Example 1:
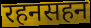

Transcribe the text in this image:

रहनसहन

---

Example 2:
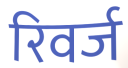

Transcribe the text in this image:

रिवर्ज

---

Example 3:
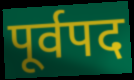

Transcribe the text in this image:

पूर्वपद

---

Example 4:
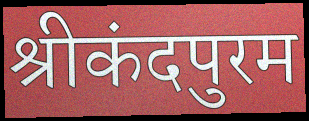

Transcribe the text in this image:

श्रीकंदपुरम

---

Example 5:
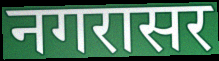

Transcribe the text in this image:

नगरासर